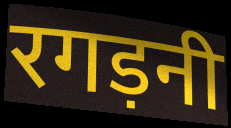
रगड़नी